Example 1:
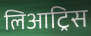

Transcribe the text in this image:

लिआट्रिस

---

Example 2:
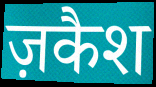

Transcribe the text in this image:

ज़कैश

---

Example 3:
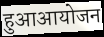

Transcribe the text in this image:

हुआआयोजन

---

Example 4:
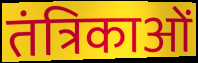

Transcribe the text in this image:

तंत्रिकाओं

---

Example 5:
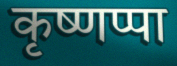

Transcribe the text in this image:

कृष्‍णप्‍पा